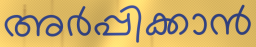
അർപ്പിക്കാൻ